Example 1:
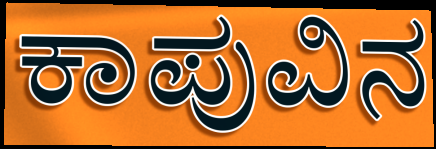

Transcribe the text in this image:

ಕಾಪುವಿನ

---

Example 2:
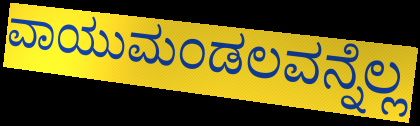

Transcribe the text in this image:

ವಾಯುಮಂಡಲವನ್ನೆಲ್ಲ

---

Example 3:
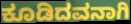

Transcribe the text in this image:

ಕೂಡಿದವನಾಗಿ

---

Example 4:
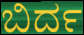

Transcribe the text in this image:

ಬಿರ್ದ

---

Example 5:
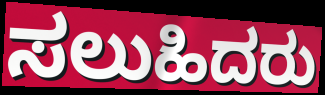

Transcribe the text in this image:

ಸಲುಹಿದರು